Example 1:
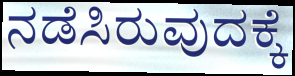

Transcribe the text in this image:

ನಡೆಸಿರುವುದಕ್ಕೆ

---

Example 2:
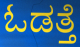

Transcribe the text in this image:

ಓಡತ್ತೆ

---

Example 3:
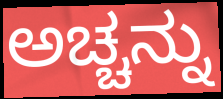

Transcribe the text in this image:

ಅಚ್ಚನ್ನು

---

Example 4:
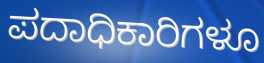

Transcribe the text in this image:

ಪದಾಧಿಕಾರಿಗಳೂ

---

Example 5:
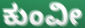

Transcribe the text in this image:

ಕುಂವೀ